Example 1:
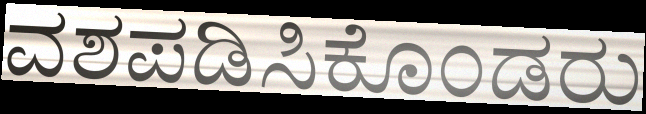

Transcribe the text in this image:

ವಶಪಡಿಸಿಕೊಂಡರು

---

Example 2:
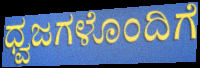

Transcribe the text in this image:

ಧ್ವಜಗಳೊಂದಿಗೆ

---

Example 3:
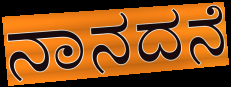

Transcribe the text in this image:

ನಾನದನೆ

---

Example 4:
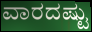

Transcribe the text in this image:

ವಾರದಷ್ಟು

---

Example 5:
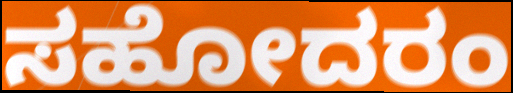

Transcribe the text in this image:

ಸಹೋದರಂ